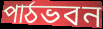
পাঠভবন